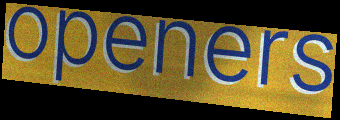
openers